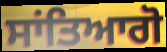
ਸਾਂਤਿਆਗੋ